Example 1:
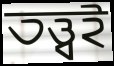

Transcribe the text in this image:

তত্ত্বই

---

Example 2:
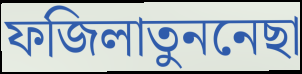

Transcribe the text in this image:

ফজিলাতুননেছা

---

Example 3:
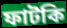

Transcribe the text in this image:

ফাটকি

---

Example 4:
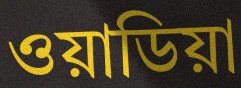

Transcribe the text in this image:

ওয়াডিয়া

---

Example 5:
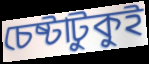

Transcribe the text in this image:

চেষ্টাটুকুই